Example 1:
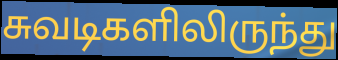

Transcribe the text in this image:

சுவடிகளிலிருந்து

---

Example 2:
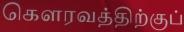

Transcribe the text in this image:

கௌரவத்திற்குப்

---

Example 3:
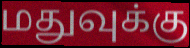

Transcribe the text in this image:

மதுவுக்கு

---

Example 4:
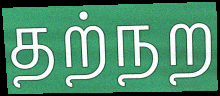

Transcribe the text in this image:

தற்நற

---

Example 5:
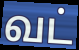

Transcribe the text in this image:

வட்